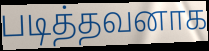
படித்தவனாக